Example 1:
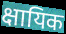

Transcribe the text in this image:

क्षायिक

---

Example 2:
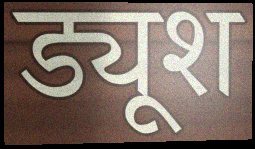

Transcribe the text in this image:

ड्यूश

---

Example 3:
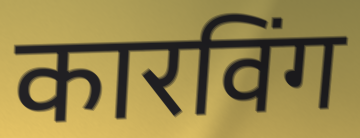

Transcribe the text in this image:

कारविंग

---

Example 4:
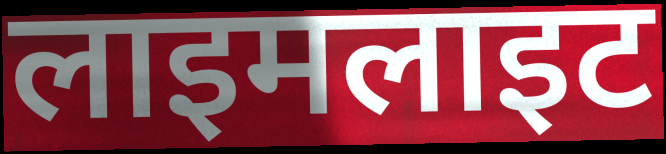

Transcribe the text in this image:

लाइमलाइट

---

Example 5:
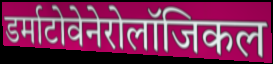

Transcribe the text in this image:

डर्माटोवेनेरोलॉजिकल